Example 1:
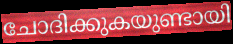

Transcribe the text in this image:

ചോദിക്കുകയുണ്ടായി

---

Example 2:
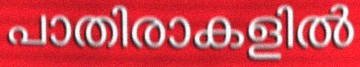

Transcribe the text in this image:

പാതിരാകളിൽ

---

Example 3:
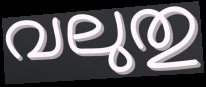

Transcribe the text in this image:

വലുതു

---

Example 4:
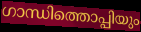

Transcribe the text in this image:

ഗാന്ധിത്തൊപ്പിയും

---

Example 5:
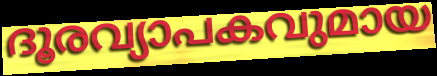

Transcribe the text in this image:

ദൂരവ്യാപകവുമായ